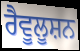
ਰੈਵੂਲੂਸ਼ਨ